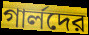
গার্লদের